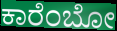
ಕಾರೆಂಬೋ